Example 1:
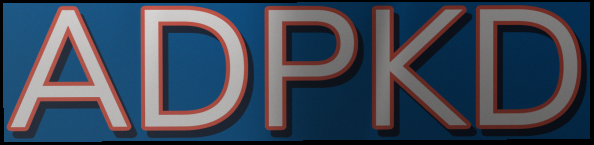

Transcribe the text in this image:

ADPKD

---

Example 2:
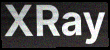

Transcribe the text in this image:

XRay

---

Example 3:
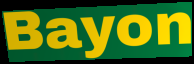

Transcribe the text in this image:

Bayon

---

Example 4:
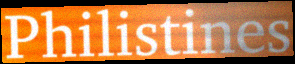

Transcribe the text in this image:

Philistines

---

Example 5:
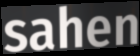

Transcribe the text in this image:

sahen